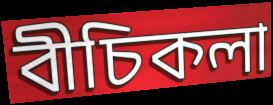
বীচিকলা